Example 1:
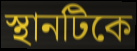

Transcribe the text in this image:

স্থানটিকে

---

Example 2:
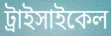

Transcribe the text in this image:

ট্রাইসাইকেল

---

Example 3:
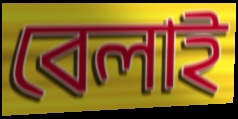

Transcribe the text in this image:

বেলাই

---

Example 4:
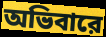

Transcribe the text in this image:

অভিবারে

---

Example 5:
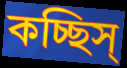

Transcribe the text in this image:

কচ্ছিস্